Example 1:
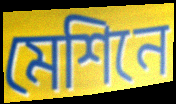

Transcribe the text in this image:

মেশিনে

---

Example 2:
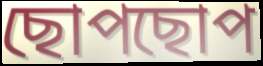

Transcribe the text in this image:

ছোপছোপ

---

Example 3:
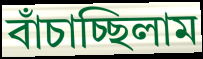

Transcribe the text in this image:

বাঁচাচ্ছিলাম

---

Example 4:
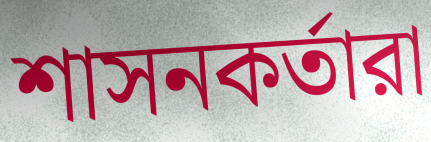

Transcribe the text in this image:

শাসনকর্তারা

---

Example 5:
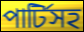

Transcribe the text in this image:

পার্টিসহ